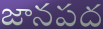
జానపద